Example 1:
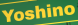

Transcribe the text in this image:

Yoshino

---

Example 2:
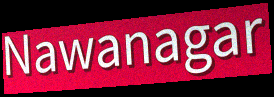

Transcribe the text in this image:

Nawanagar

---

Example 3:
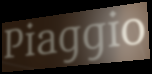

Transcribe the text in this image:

Piaggio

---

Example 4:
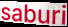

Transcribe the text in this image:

saburi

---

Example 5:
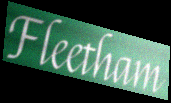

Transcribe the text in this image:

Fleetham